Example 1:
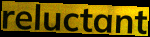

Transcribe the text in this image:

reluctant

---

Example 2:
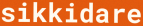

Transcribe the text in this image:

sikkidare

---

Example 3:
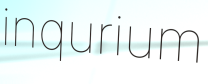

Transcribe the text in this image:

inqurium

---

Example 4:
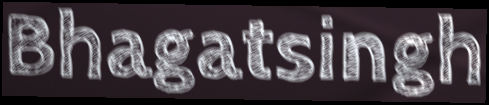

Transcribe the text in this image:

Bhagatsingh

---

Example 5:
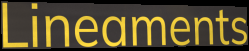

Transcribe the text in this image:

Lineaments